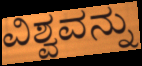
ವಿಶ್ವವನ್ನು